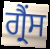
ਗ੍ਰੈਂਸ